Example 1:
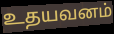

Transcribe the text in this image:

உதயவனம்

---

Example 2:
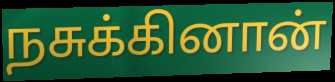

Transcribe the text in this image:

நசுக்கினான்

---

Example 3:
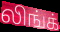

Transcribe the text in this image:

லிங்க்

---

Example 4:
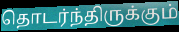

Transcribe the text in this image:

தொடர்ந்திருக்கும்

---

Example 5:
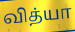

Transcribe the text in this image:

வித்யா